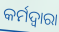
କର୍ମଦ୍ୱାରା